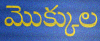
మొక్కుల